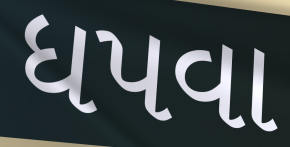
ધપવા